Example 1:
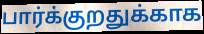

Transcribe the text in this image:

பார்க்குறதுக்காக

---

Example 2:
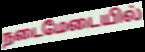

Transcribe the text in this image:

நடைமேடையில்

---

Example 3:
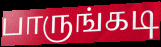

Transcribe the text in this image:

பாருங்கடி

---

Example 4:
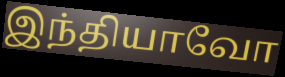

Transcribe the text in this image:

இந்தியாவோ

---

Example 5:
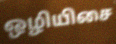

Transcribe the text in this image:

ஒழியிசை